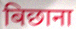
बिछाना